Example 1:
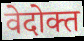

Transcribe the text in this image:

वेदोक्त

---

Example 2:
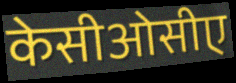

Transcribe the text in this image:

केसीओसीए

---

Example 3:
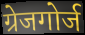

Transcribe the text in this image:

ग्रेजगोर्ज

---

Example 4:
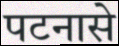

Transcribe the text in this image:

पटनासे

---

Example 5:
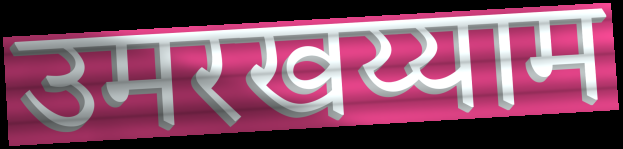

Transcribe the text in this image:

उमरखय्याम